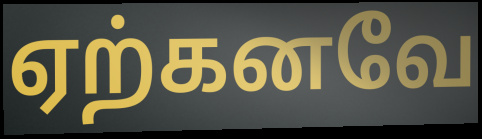
ஏற்கனவே